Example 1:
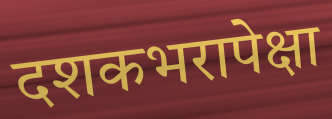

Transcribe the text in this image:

दशकभरापेक्षा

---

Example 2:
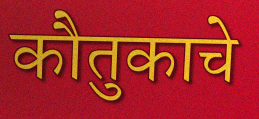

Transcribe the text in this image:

कौतुकाचे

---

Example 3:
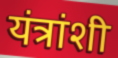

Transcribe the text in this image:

यंत्रांशी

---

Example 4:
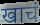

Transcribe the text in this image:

खाचं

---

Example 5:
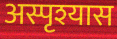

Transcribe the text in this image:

अस्पृश्यास